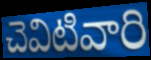
చెవిటివారి